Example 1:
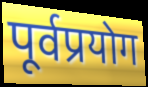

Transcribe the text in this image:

पूर्वप्रयोग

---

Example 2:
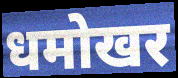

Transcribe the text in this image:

धमोखर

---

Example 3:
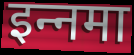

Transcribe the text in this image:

इन्नमा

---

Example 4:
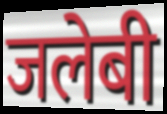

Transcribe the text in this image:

जलेबी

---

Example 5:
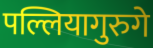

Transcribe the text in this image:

पल्लियागुरुगे